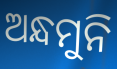
ଅନ୍ଧମୁନି